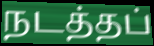
நடத்தப்